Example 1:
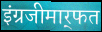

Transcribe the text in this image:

इंग्रजीमार्फत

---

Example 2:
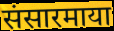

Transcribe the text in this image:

संसारमाया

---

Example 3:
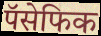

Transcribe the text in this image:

पॅसेफिक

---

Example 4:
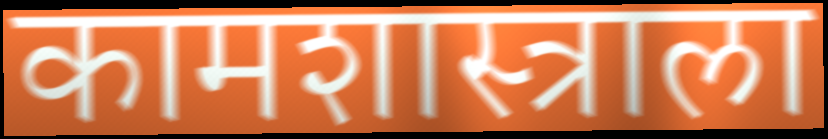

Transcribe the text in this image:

कामशास्त्राला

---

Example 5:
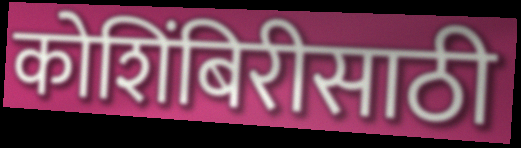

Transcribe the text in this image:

कोशिंबिरीसाठी